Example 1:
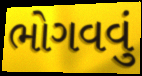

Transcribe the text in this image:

ભોગવવું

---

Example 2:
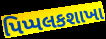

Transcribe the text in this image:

પિપ્પલકશાખા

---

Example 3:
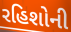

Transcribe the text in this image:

રહિશોની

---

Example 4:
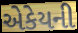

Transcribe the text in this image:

એકેયની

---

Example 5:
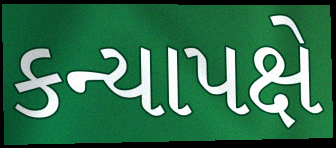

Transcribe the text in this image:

કન્યાપક્ષે